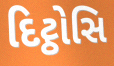
દિટ્ઠોસિ